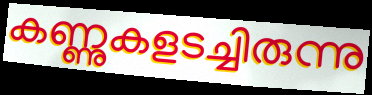
കണ്ണുകളടച്ചിരുന്നു